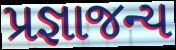
પ્રજ્ઞાજન્ય